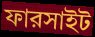
ফারসাইট